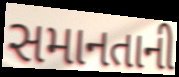
સમાનતાની